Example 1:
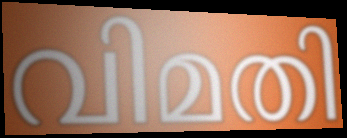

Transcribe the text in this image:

വിമതി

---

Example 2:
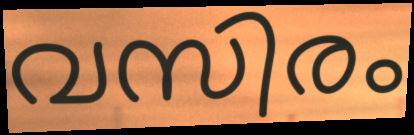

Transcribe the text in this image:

വസിരം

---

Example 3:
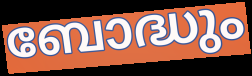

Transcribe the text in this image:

ബോദ്ധും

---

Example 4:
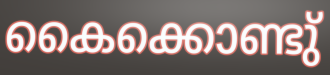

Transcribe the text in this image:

കൈക്കൊണ്ടു്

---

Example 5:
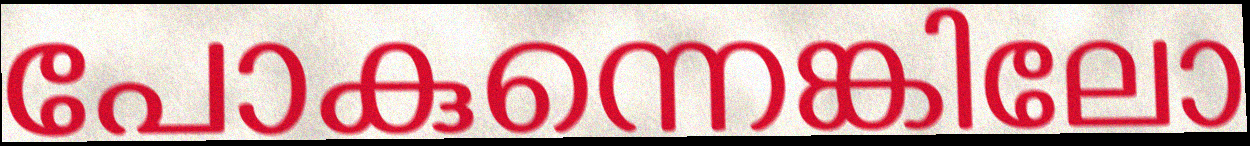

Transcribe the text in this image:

പോകുന്നെങ്കിലോ